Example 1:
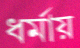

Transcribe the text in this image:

ধর্মায়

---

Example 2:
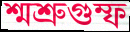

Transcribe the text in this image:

শ্মশ্রুগুম্ফ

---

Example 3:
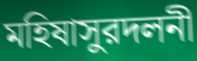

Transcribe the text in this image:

মহিষাসুরদলনী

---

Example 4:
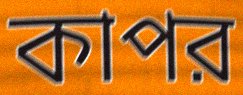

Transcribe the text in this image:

কাপর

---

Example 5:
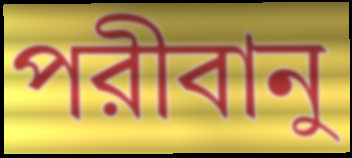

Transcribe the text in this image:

পরীবানু